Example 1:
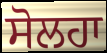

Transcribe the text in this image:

ਸੋਲਹਾ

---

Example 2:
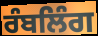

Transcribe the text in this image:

ਰੰਬਲਿੰਗ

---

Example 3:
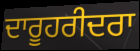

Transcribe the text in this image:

ਦਾਰੂਹਰੀਦਰਾ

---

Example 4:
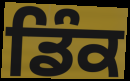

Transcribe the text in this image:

ਡਿੰਕ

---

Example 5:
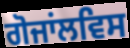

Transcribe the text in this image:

ਗੋਜਾਂਲਵਿਸ